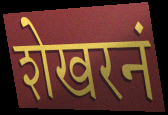
शेखरनं